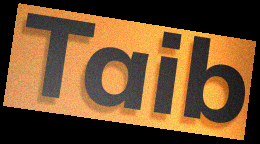
Taib